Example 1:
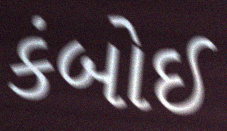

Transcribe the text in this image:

કંબોઈ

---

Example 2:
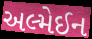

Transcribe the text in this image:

અલ્મેઈન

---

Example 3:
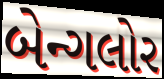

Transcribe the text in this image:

બેન્ગલોર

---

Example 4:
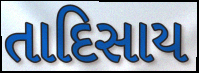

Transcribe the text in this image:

તાદિસાય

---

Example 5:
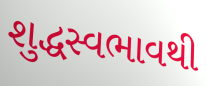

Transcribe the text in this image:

શુદ્ધસ્વભાવથી